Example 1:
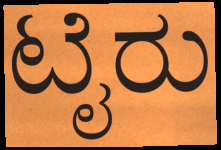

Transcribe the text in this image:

ಟೈರು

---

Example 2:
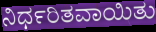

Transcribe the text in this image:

ನಿರ್ಧರಿತವಾಯಿತು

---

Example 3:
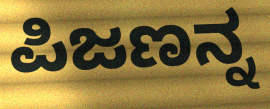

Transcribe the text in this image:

ಪಿಜಣನ್ನ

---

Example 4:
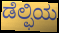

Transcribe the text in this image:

ಡೆಲ್ಫಿಯ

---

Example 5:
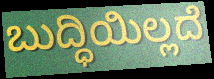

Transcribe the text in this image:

ಬುದ್ಧಿಯಿಲ್ಲದೆ